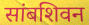
सांबशिवन